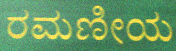
ರಮಣೀಯ